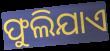
ଫୁଲିଯାଏ